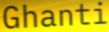
Ghanti